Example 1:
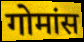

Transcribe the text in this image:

गोमांस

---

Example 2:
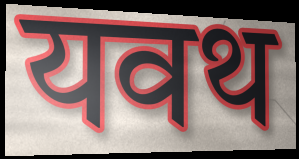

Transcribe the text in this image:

यवथ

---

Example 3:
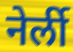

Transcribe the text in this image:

नेर्ली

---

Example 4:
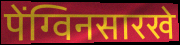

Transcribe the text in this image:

पेंग्विनसारखे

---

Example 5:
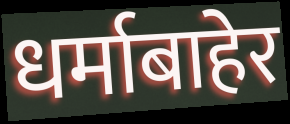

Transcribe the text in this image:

धर्माबाहेर